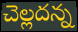
చెల్లదన్న